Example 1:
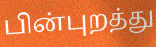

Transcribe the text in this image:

பின்புறத்து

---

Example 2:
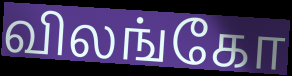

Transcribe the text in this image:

விலங்கோ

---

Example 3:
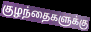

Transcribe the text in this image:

குழந்தைகளுக்கு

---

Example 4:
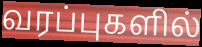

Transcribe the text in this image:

வரப்புகளில்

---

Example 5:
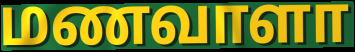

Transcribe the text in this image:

மணவாளா